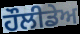
ਹੌਲੀਡੇਅ